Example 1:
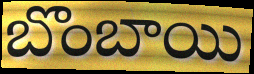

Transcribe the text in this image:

బొంబాయి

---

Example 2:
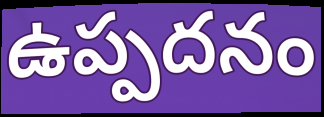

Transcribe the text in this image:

ఉప్పదనం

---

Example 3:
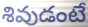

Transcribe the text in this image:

శివుడంటే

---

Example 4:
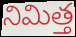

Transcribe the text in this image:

నిమిత్త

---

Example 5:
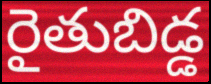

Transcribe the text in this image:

రైతుబిడ్డ